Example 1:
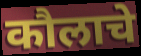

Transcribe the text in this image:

कौलाचे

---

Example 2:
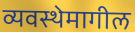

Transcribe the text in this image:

व्यवस्थेमागील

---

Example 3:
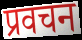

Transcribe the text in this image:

प्रवचन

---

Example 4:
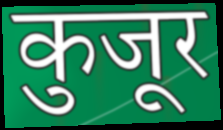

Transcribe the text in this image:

कुजूर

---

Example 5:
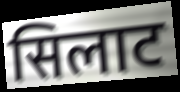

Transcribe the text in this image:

सिलाट